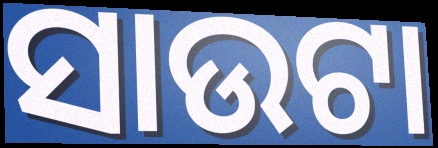
ସାଉଟା